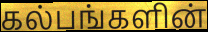
கல்பங்களின்